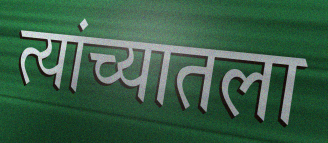
त्यांच्यातला